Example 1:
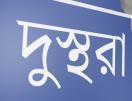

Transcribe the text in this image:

দুস্থরা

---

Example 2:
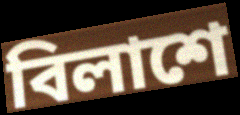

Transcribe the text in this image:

বিলাশে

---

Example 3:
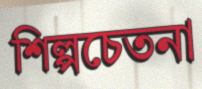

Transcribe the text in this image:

শিল্পচেতনা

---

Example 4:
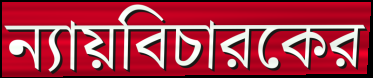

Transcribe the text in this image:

ন্যায়বিচারকের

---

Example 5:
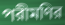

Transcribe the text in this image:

পরীমণির